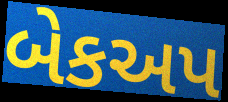
બેકઅપ